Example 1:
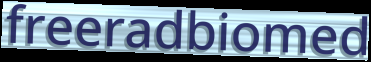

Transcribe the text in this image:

freeradbiomed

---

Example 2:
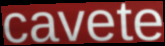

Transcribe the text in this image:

cavete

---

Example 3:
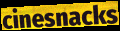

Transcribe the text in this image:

cinesnacks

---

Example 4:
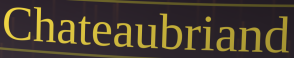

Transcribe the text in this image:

Chateaubriand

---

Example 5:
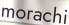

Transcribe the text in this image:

morachi